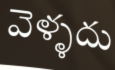
వెళ్ళదు